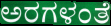
ಅರಗಳಂತೆ